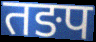
तङप